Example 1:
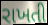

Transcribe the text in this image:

રાખતી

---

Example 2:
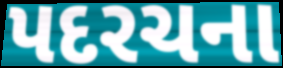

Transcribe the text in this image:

પદરચના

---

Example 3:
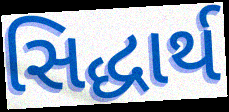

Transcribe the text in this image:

સિદ્ધાર્થ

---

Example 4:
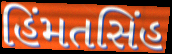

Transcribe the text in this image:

હિંમતસિંહ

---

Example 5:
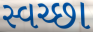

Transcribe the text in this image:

સ્વચ્છા